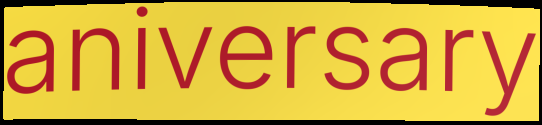
aniversary